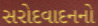
સરોદવાદનનો